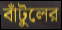
বাঁটুলের